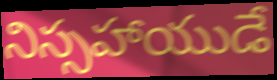
నిస్సహాయుడే